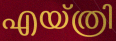
എയ്ത്രി